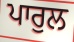
ਪਾਰੁਲ